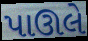
પાઊલે